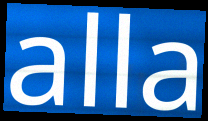
alla